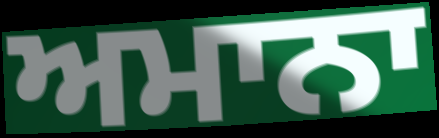
ਅਮਾਨਾ